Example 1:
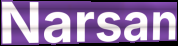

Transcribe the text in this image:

Narsan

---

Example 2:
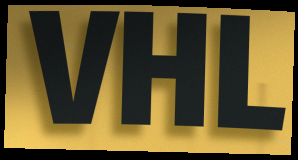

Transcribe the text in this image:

VHL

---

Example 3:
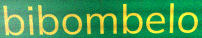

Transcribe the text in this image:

bibombelo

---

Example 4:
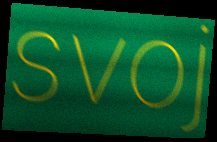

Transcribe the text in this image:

svoj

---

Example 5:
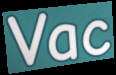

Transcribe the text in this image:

Vac